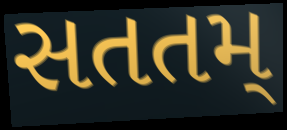
સતતમ્